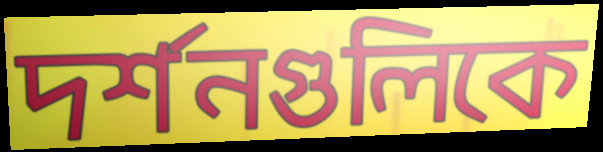
দর্শনগুলিকে